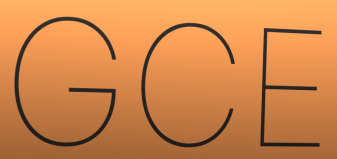
GCE